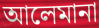
আলেমানা